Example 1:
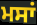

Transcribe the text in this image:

ਮਸਾਂ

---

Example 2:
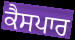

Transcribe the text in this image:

ਕੈਸਪਾਰ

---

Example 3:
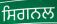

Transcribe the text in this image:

ਸਿਗਨਲ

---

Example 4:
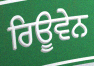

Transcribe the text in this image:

ਰਿਊਵੇਨ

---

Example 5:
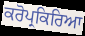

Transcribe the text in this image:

ਕਰੋਪ੍ਰਕਿਰਿਆ